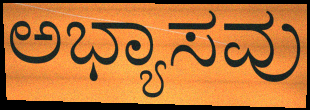
ಅಭ್ಯಾಸವು